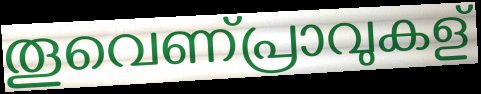
തൂവെണ്പ്രാവുകള്